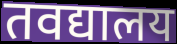
तवद्यालय